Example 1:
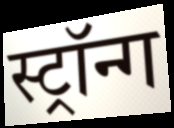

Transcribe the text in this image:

स्ट्रॉन्ग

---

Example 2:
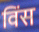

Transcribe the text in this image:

विंस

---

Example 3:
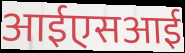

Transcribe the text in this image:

आईएसआई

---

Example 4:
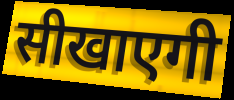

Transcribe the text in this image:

सीखाएगी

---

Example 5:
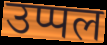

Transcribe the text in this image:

उप्पल